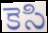
కెసి